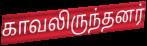
காவலிருந்தனர்